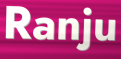
Ranju